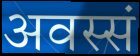
अवस्सं